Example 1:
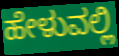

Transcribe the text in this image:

ಹೇಳುವಲ್ಲಿ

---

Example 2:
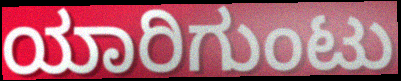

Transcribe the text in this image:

ಯಾರಿಗುಂಟು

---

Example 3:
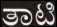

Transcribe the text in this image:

ತಾಟಿ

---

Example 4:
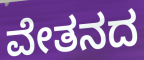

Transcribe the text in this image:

ವೇತನದ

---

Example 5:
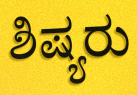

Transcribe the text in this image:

ಶಿಷ್ಯರು